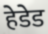
हेडेड